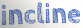
incline